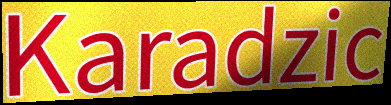
Karadzic